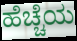
ಹೆಚ್ಚೆಯ